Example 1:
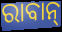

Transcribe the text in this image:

ରାବାନ୍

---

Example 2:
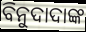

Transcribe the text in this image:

ବିନୁଦାଦାଙ୍କ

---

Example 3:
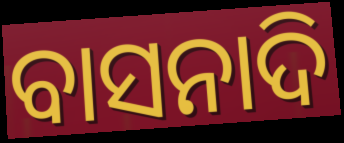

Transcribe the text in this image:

ବାସନାଦି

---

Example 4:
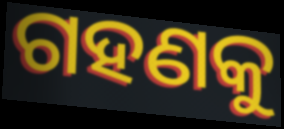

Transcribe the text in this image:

ଗହଣକୁ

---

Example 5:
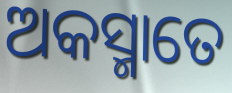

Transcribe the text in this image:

ଅକସ୍ମାତେ